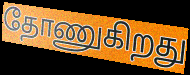
தோணுகிறது